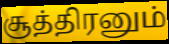
சூத்திரனும்